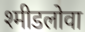
श्मीडलोवा